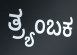
ತ್ರ್ಯಂಬಕ